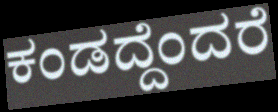
ಕಂಡದ್ದೆಂದರೆ